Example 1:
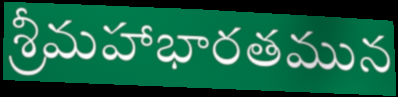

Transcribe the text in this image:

శ్రీమహాభారతమున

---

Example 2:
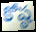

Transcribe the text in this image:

కోష్ఠ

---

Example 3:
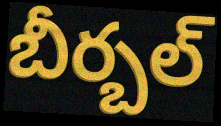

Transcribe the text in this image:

బీర్బల్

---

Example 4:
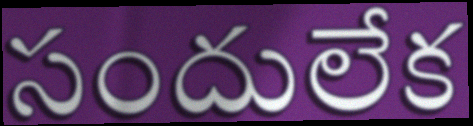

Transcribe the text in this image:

సందులేక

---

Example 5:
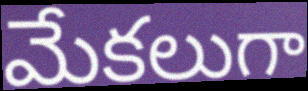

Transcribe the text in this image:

మేకలుగా